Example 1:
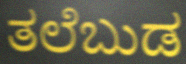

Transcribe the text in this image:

ತಲೆಬುಡ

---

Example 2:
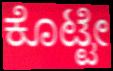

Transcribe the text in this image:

ಕೊಟ್ಟೇ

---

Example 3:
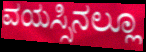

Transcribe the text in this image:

ವಯಸ್ಸಿನಲ್ಲೂ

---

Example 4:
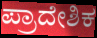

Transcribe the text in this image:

ಪ್ರಾದೇಶಿಕ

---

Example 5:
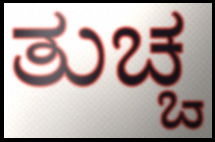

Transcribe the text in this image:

ತುಚ್ಚ